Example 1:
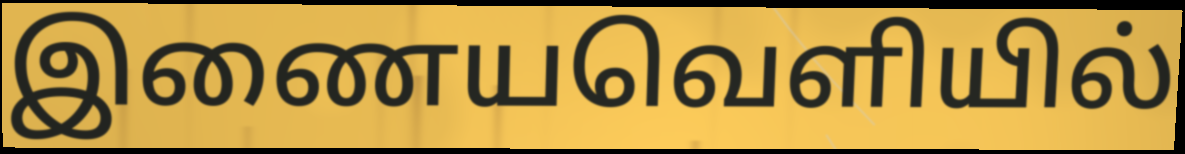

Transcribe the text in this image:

இணையவெளியில்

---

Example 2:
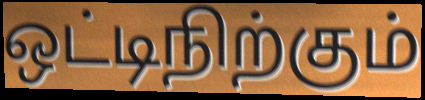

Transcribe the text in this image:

ஒட்டிநிற்கும்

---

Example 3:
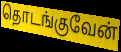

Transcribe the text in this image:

தொடங்குவேன்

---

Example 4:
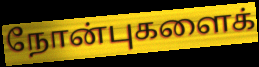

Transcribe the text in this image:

நோன்புகளைக்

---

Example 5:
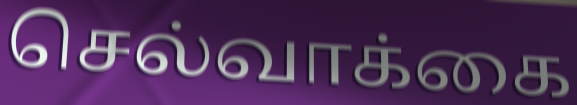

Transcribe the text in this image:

செல்வாக்கை